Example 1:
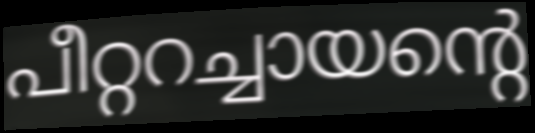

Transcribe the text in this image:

പീറ്ററച്ചായന്റെ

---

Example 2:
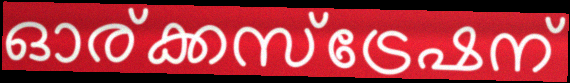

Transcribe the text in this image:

ഓര്ക്കസ്ട്രേഷന്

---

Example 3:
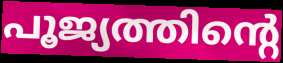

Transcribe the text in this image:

പൂജ്യത്തിന്റെ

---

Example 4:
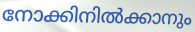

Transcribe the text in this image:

നോക്കിനിൽക്കാനും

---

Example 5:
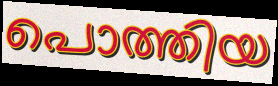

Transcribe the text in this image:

പൊത്തിയ